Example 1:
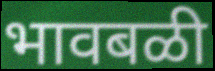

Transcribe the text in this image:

भावबळी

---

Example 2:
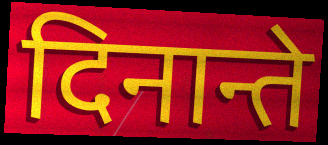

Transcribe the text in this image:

दिनान्ते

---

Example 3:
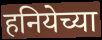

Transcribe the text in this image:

हनियेच्या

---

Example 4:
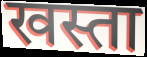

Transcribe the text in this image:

खस्ता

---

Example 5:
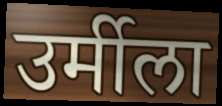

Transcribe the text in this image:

उर्मीला